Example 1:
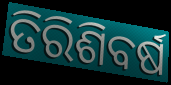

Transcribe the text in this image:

ତିରିଶିବର୍ଷ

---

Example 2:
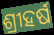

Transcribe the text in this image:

ଶ୍ରୀହର୍ଷ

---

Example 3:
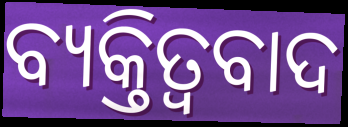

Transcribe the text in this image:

ବ୍ଯକ୍ତିତ୍ଵବାଦ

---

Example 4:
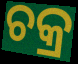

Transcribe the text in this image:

ଚକ୍ର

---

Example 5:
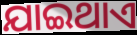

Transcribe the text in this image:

ଯାଇଥାଏ